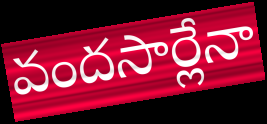
వందసార్లేనా